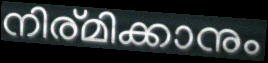
നിര്മിക്കാനും